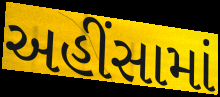
અહીંસામાં